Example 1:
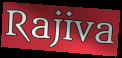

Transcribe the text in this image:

Rajiva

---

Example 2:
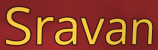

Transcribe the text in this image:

Sravan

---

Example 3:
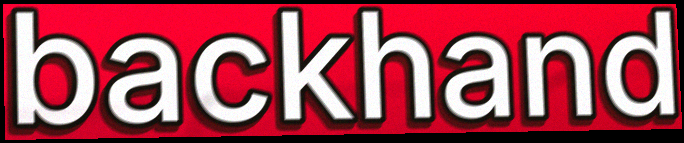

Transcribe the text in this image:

backhand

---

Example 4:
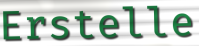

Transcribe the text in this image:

Erstelle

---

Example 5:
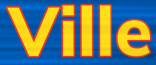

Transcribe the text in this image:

Ville